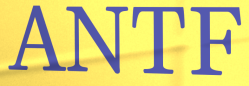
ANTF